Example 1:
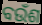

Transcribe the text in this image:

ବଉଁଶ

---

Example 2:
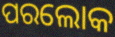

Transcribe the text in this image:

ପରଲୋକ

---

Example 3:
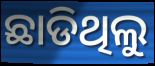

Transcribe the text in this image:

ଛାଡିଥିଲୁ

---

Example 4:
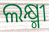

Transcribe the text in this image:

ଲକ୍ଷ୍ମୀ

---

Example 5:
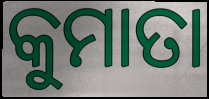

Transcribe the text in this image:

କୁମାତା